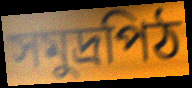
সমুদ্রপিঠ